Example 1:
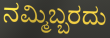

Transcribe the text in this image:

ನಮ್ಮಿಬ್ಬರದು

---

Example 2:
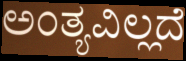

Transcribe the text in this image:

ಅಂತ್ಯವಿಲ್ಲದೆ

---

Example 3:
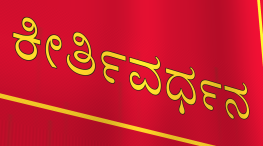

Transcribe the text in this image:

ಕೀರ್ತಿವರ್ಧನ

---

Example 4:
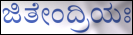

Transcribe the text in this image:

ಜಿತೇಂದ್ರಿಯಃ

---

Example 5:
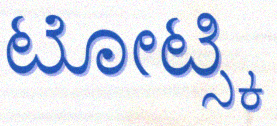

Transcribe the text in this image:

ಟೋಟ್ಸ್ಕಿ